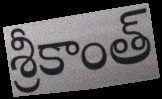
శ్రీకాంత్